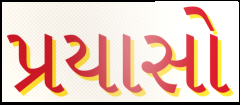
પ્રયાસો